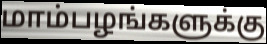
மாம்பழங்களுக்கு